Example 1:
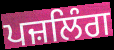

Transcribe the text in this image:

ਪਜ਼ਲਿੰਗ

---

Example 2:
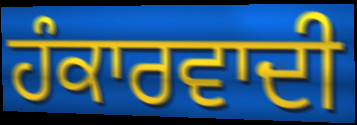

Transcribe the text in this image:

ਹੰਕਾਰਵਾਦੀ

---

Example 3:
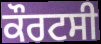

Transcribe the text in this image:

ਕੌਰਟਸੀ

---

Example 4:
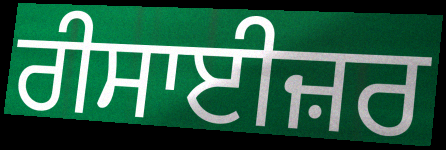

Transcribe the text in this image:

ਰੀਸਾਈਜ਼ਰ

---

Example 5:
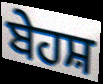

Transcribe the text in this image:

ਬੇਹਸ਼